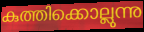
കുത്തിക്കൊല്ലുന്നു